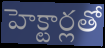
హెక్టార్లతో